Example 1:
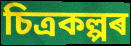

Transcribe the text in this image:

চিত্ৰকল্পৰ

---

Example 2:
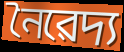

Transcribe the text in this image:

নৈৱেদ্য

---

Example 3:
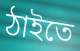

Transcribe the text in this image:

ঠাইতে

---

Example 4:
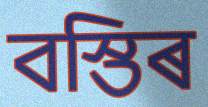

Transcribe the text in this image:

বস্তিৰ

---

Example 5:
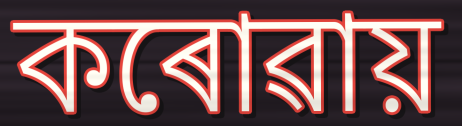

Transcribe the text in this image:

কৰোৱায়